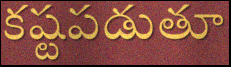
కష్టపడుతూ